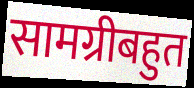
सामग्रीबहुत